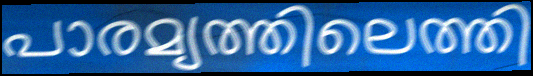
പാരമ്യത്തിലെത്തി